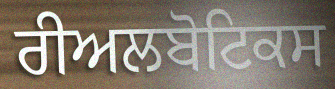
ਰੀਅਲਬੋਟਿਕਸ